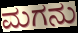
ಮಗನು